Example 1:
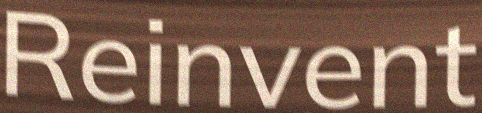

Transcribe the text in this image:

Reinvent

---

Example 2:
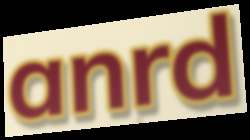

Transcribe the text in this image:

anrd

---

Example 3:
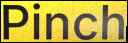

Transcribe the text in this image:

Pinch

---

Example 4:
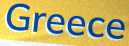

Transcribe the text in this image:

Greece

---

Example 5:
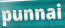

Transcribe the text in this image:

punnai